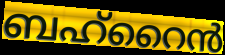
ബഹ്റൈൻ